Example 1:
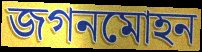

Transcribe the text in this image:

জগনমোহন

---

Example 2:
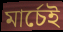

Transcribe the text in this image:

মার্চেই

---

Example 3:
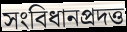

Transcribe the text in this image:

সংবিধানপ্রদত্ত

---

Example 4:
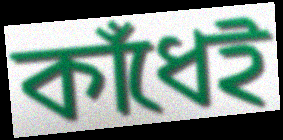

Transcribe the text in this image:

কাঁধেই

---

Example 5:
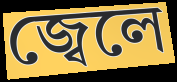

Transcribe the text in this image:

জ্বেলে